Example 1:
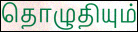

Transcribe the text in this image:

தொழுதியும்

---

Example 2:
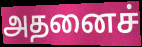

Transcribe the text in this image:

அதனைச்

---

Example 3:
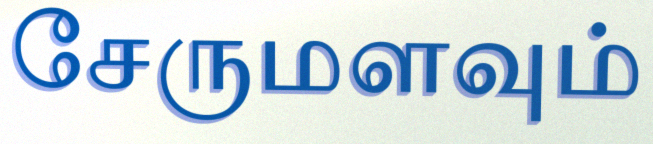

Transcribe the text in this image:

சேருமளவும்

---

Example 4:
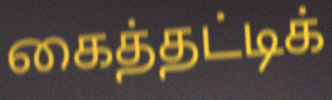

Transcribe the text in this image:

கைத்தட்டிக்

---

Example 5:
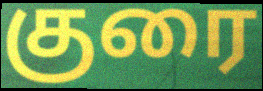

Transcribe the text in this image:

குரை